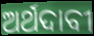
ଅର୍ଥଦାବୀ